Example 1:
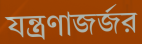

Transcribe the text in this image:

যন্ত্রণাজর্জর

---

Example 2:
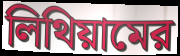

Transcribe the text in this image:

লিথিয়ামের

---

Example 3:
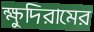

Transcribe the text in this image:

ক্ষুদিরামের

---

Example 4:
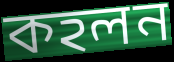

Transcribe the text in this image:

কহলন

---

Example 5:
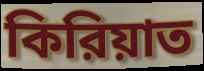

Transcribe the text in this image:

কিরিয়াত